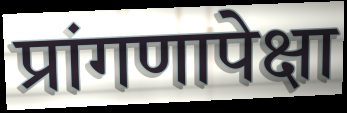
प्रांगणापेक्षा